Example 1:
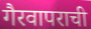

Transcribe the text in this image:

गैरवापराची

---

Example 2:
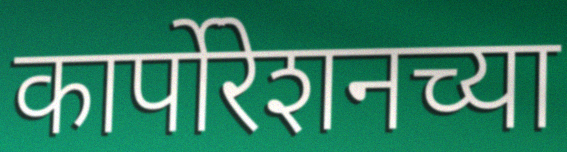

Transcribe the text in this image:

कार्पोरेशनच्या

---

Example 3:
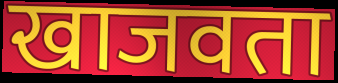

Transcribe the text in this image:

खाजवता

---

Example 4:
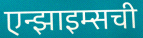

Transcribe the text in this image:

एन्झाइम्सची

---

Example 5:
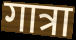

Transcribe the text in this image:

गात्रा